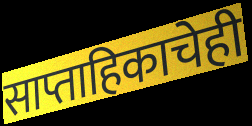
साप्ताहिकाचेही